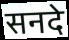
सनदे